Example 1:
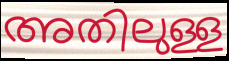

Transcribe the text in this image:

അതിലുള്ള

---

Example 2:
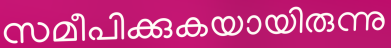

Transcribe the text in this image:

സമീപിക്കുകയായിരുന്നു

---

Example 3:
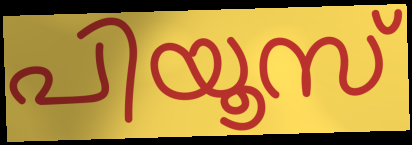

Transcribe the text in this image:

പിയൂസ്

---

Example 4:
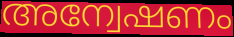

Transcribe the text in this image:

അന്വേഷണം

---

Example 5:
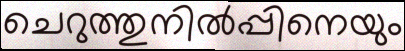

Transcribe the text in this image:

ചെറുത്തുനിൽപ്പിനെയും